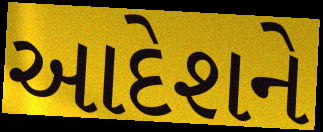
આદેશને